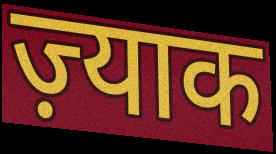
ज़्याक